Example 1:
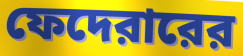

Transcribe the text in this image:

ফেদেরারের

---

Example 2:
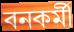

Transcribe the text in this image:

বনকর্মী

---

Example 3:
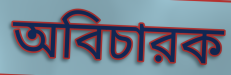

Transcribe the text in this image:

অবিচারক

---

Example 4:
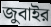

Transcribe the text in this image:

জুবাইর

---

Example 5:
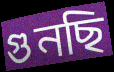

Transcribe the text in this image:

গুনছি